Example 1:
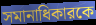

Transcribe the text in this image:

সমানাধিকারকে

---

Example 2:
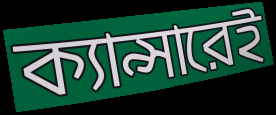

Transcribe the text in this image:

ক্যান্সারেই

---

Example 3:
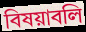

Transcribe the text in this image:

বিষয়াবলি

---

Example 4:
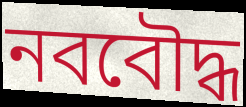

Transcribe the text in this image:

নববৌদ্ধ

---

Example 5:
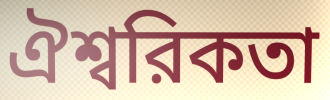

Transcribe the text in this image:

ঐশ্বরিকতা